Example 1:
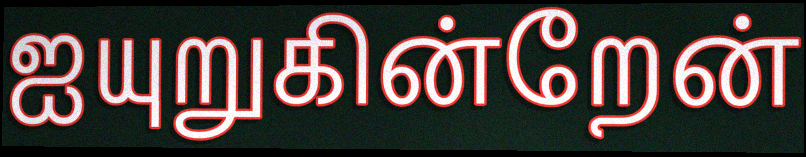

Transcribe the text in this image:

ஐயுறுகின்றேன்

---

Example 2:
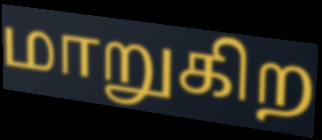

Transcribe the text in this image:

மாறுகிற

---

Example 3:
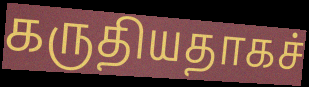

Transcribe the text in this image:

கருதியதாகச்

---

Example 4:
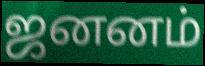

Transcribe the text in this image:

ஜனனம்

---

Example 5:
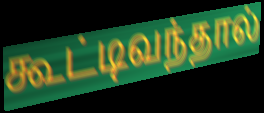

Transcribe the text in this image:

கூட்டிவந்தால்